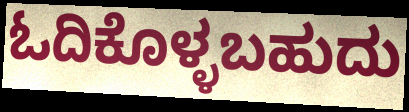
ಓದಿಕೊಳ್ಳಬಹುದು